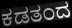
ಕಡತಂದ